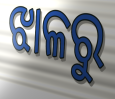
ଝାଳରୁ